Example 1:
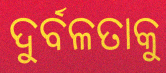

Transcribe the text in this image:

ଦୁର୍ବଳତାକୁ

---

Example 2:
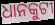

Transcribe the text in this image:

ଧାନକୁଟୀ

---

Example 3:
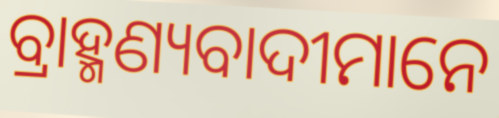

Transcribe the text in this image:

ବ୍ରାହ୍ମଣ୍ୟବାଦୀମାନେ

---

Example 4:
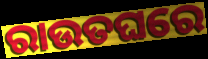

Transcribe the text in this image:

ରାଉତଘରେ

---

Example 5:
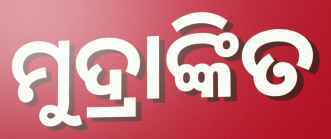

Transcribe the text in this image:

ମୁଦ୍ରାଙ୍କିତ